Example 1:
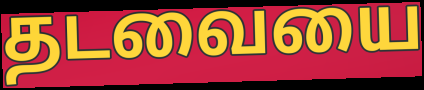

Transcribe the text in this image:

தடவையை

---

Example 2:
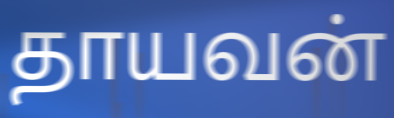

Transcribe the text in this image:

தாயவன்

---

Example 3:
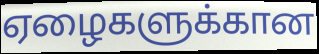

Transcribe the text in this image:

ஏழைகளுக்கான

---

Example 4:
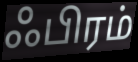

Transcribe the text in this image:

ஃபிரம்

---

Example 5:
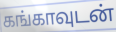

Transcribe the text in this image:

கங்காவுடன்